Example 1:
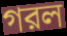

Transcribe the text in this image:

গরল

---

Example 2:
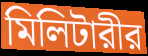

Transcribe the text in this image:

মিলিটারীর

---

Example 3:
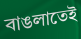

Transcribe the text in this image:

বাঙলাতেই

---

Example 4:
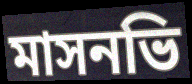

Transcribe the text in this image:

মাসনভি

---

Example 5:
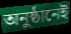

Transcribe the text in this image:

অনুষ্ঠানেই